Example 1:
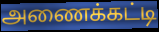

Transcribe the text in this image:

அணைக்கட்டி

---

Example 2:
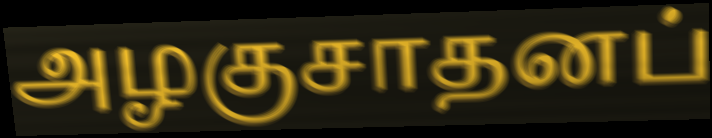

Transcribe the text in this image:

அழகுசாதனப்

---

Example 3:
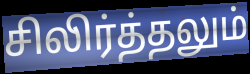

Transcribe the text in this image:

சிலிர்த்தலும்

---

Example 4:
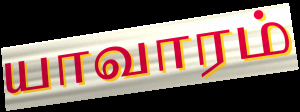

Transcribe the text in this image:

யாவாரம்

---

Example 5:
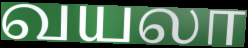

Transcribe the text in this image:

வயலா